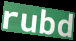
rubd